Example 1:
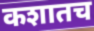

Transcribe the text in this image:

कशातच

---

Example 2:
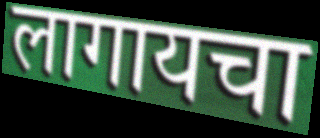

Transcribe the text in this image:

लागायचा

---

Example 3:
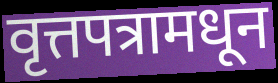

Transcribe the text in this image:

वृत्तपत्रामधून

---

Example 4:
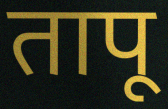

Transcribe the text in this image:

तापू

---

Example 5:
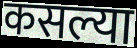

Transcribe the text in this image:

कसल्या